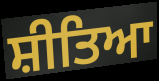
ਸ਼ੀਤਿਆ